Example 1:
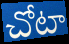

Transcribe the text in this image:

చోటా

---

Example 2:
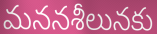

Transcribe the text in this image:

మననశీలునకు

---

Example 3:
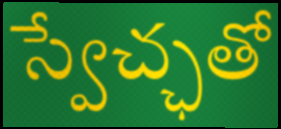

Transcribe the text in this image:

స్వేచ్ఛతో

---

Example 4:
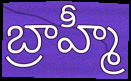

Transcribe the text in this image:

బ్రాహ్మీ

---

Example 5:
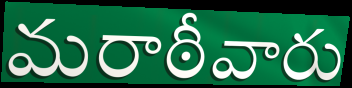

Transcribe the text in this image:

మరాఠీవారు